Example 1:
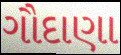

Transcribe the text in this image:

ગૌદાણા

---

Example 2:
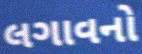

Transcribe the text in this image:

લગાવનો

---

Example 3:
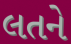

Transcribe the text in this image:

લતને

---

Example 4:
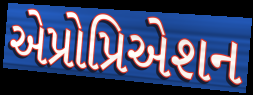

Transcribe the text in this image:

એપ્રોપ્રિએશન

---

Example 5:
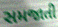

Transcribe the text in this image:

સમજાતી